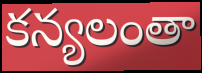
కన్యలంతా